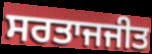
ਸਰਤਾਜਜੀਤ